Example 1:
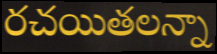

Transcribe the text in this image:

రచయితలన్నా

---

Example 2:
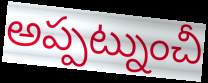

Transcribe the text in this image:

అప్పట్నుంచీ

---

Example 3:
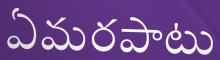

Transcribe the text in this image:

ఏమరపాటు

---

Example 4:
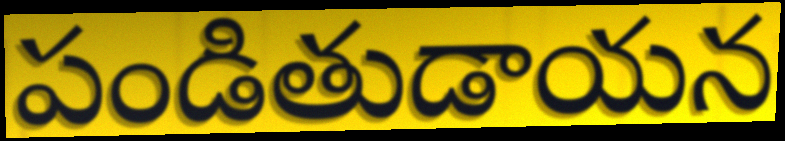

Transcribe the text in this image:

పండితుడాయన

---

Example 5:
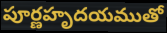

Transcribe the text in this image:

పూర్ణహృదయముతో